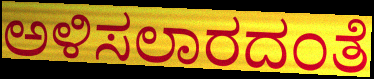
ಅಳಿಸಲಾರದಂತೆ